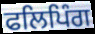
ਫਲਿਪਿੰਗ